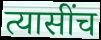
त्यासींच